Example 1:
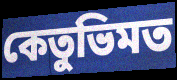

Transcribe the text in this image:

কেতুভিমত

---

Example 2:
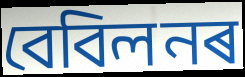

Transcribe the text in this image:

বেবিলনৰ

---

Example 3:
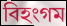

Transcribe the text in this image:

বিহংগম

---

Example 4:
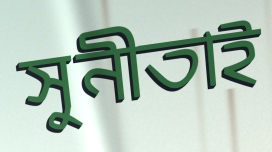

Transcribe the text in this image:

সুনীতাই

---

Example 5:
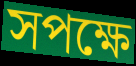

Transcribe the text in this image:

সপক্ষে